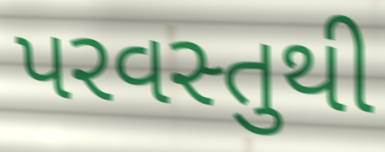
પરવસ્તુથી